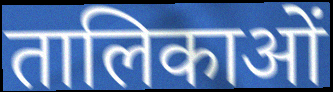
तालिकाओं